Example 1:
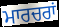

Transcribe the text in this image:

ਮਾਰਚਰਾਂ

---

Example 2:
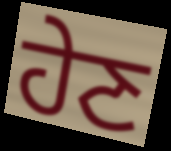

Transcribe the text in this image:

ਹੇਣ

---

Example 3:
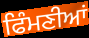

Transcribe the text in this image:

ਫਿੰਮਣੀਆਂ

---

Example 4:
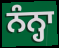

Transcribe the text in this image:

ਨੰਨ੍ਹਾ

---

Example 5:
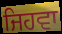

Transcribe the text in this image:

ਜਿਹਵਾ